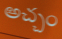
అచ్చం